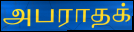
அபராதக்